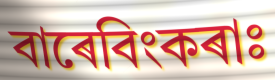
বাৰেবিংকৰাঃ